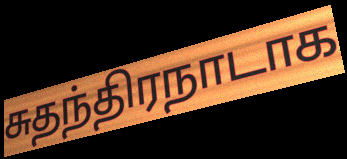
சுதந்திரநாடாக